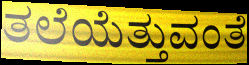
ತಲೆಯೆತ್ತುವಂತೆ